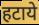
हटाये